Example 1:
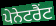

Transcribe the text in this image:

ਪੇਨੇਟਰੈਂਟ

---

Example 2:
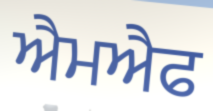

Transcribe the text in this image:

ਐਮਐਫ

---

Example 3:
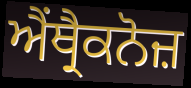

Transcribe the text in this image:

ਐਂਥ੍ਰੈਕਨੋਜ਼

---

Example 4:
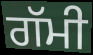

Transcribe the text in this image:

ਗੱਮੀ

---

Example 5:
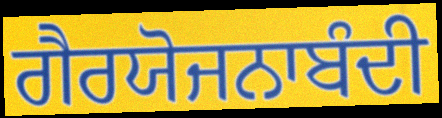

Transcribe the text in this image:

ਗੈਰਯੋਜਨਾਬੰਦੀ